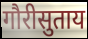
गौरीसुताय